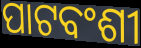
ପାଟବଂଶୀ